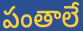
పంతాలే